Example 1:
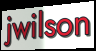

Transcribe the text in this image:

jwilson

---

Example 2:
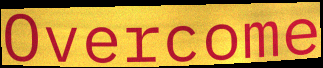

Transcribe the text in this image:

Overcome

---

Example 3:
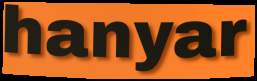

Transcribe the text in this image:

hanyar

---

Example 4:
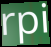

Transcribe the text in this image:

rpi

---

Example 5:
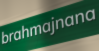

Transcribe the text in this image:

brahmajnana